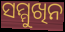
ସମ୍ମୁଖିନ